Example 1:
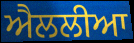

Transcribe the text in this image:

ਐਲਲੀਆ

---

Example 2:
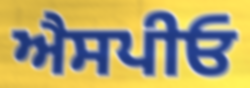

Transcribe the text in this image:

ਐਸਪੀਓ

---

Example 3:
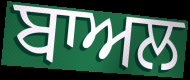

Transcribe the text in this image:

ਬਾਅਲ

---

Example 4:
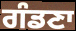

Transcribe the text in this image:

ਗੰਡਣਾ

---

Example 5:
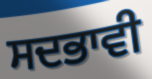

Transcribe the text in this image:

ਸਦਭਾਵੀ